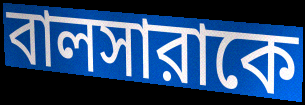
বালসারাকে